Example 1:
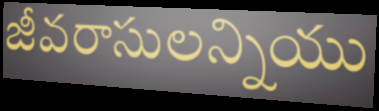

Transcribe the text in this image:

జీవరాసులన్నియు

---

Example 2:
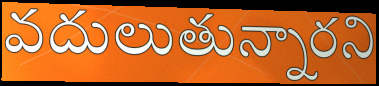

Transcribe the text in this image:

వదులుతున్నారని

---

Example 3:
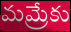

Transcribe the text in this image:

మమ్రేకు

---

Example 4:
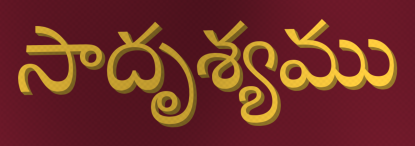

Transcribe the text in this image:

సాదృశ్యము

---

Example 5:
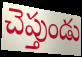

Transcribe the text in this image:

చెప్తుండు